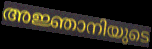
അജ്ഞാനിയുടെ